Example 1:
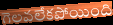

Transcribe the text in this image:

గెలవలేకపోయింది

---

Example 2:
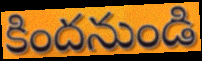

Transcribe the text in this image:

కిందనుండి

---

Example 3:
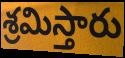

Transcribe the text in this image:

శ్రమిస్తారు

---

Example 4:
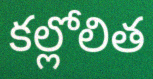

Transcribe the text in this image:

కల్లోలిత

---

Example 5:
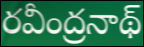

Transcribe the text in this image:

రవీంద్రనాథ్